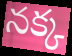
నక్క